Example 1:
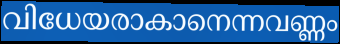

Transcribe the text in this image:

വിധേയരാകാനെന്നവണ്ണം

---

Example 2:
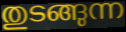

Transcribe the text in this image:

തുടങ്ങുന്ന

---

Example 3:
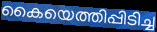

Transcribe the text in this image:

കൈയെത്തിപ്പിടിച്ച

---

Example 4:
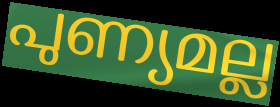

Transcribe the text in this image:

പുണ്യമല്ല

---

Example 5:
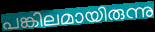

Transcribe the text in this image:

പങ്കിലമായിരുന്നു